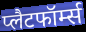
प्लैटफॉर्म्स